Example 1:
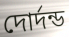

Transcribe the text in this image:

দোর্দন্ড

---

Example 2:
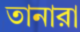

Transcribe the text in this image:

তানারা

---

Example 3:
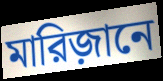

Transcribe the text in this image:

মারিজ়ানে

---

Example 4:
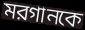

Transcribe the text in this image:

মরগানকে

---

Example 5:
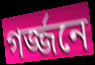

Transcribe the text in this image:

গর্জ্জনে